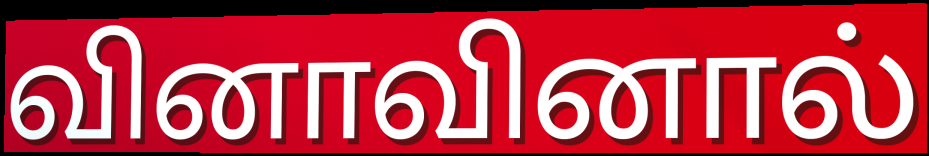
வினாவினால்